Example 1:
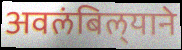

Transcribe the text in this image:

अवलंबिल्याने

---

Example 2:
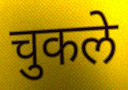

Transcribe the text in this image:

चुकले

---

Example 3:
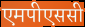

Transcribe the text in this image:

एमपीएससी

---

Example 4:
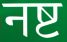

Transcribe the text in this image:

नष्ट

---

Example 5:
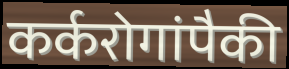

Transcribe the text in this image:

कर्करोगांपैकी